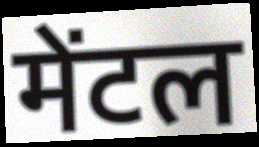
मेंटल